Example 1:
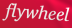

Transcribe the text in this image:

flywheel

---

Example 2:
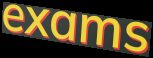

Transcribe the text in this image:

exams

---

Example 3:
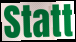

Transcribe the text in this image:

Statt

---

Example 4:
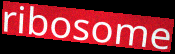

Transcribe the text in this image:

ribosome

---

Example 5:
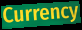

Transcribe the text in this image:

Currency